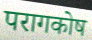
परागकोष